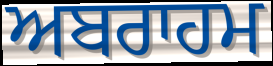
ਅਬਰਾਹਮ